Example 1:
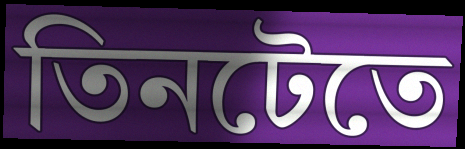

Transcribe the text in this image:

তিনটেতে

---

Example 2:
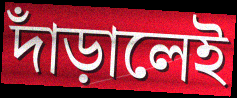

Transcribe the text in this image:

দাঁড়ালেই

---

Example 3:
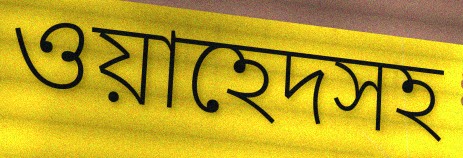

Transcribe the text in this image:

ওয়াহেদসহ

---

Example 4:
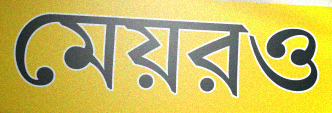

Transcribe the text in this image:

মেয়রও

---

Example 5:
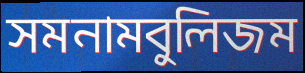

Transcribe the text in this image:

সমনামবুলিজম